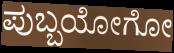
ಪುಬ್ಬಯೋಗೋ